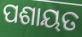
ପଶାୟତ